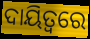
ଦାୟିତ୍ବରେ